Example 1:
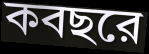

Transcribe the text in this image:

কবছরে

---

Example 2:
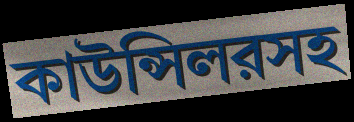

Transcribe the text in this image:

কাউন্সিলরসহ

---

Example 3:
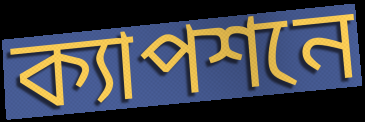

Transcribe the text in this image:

ক্যাপশনে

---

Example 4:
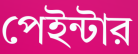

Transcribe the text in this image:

পেইন্টার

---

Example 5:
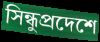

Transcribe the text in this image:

সিন্ধুপ্রদেশে